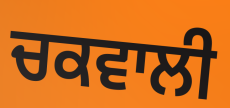
ਚਕਵਾਲੀ